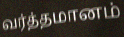
வர்த்தமானம்